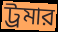
ট্রমার